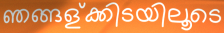
ഞങ്ങള്ക്കിടയിലൂടെ